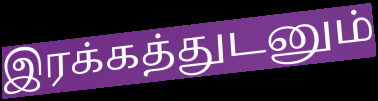
இரக்கத்துடனும்